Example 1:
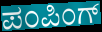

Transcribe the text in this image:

ಪಂಪಿಂಗ್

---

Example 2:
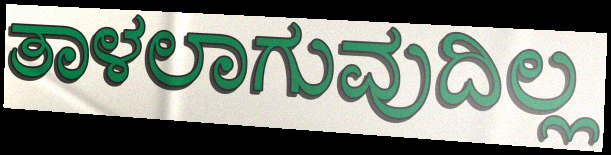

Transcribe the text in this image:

ತಾಳಲಾಗುವುದಿಲ್ಲ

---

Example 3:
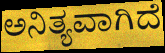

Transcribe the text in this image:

ಅನಿತ್ಯವಾಗಿದೆ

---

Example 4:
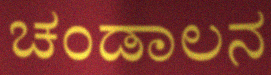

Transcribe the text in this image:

ಚಂಡಾಲನ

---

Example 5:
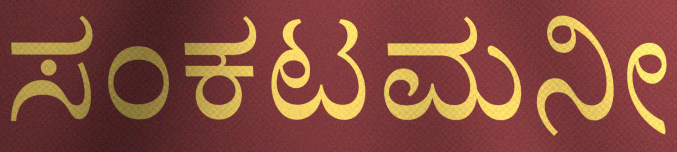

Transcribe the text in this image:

ಸಂಕಟಮನೀ